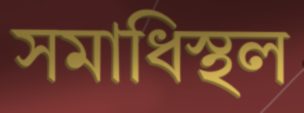
সমাধিস্থল